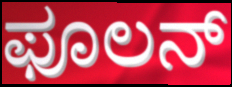
ಫೂಲನ್